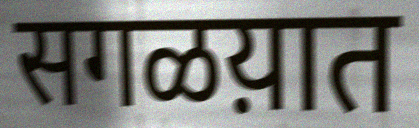
सगळय़ात